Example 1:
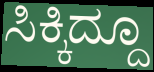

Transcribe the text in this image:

ಸಿಕ್ಕಿದ್ದೂ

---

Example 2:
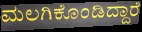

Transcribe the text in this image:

ಮಲಗಿಕೊಂಡಿದ್ದಾರೆ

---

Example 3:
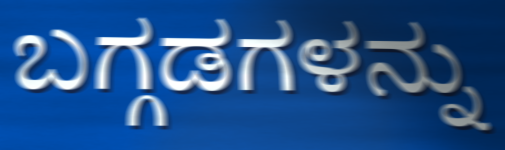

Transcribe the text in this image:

ಬಗ್ಗಡಗಳನ್ನು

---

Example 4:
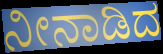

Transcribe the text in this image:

ನೀನಾಡಿದ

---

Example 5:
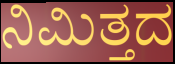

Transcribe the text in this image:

ನಿಮಿತ್ತದ